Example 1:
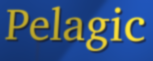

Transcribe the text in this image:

Pelagic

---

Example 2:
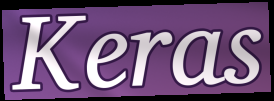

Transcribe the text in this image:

Keras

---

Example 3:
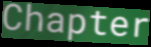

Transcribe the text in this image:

Chapter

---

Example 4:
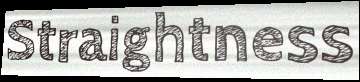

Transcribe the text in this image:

Straightness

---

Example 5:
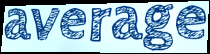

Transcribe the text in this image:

average